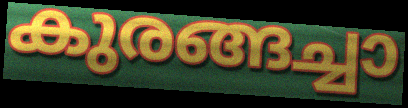
കുരങ്ങച്ചാ